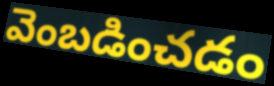
వెంబడించడం